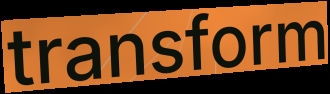
transform